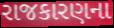
રાજકારણના